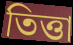
তিত্তা